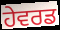
ਹੇਵਰਡ